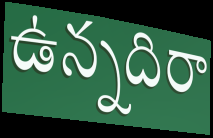
ఉన్నదిరా